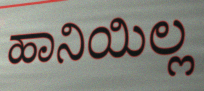
ಹಾನಿಯಿಲ್ಲ